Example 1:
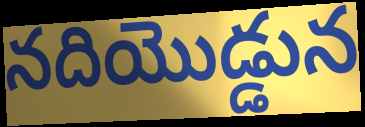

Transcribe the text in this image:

నదియొడ్డున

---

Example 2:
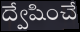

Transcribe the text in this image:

ద్వేషించే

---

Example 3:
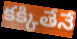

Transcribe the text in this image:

కక్కితేనే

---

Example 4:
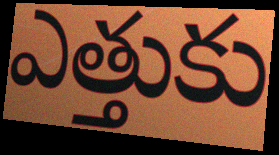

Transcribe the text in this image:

ఎత్తుకు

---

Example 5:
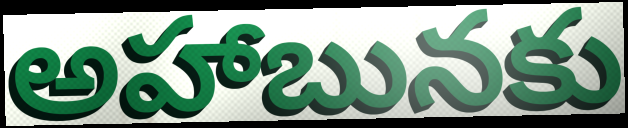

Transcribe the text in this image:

అహాబునకు